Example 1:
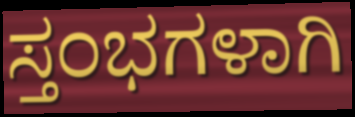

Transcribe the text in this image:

ಸ್ತಂಭಗಳಾಗಿ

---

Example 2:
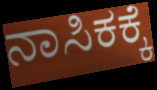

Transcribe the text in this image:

ನಾಸಿಕಕ್ಕೆ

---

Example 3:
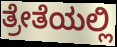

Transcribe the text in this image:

ತ್ರೇತೆಯಲ್ಲಿ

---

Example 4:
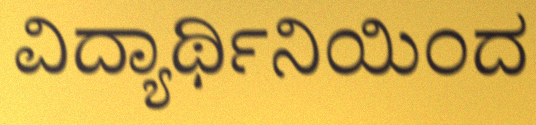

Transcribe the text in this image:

ವಿದ್ಯಾರ್ಥಿನಿಯಿಂದ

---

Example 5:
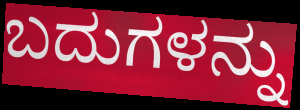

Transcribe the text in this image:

ಬದುಗಳನ್ನು